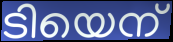
ടിയെന്